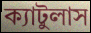
ক্যাটুলাস